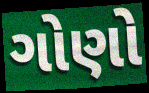
ગોણો